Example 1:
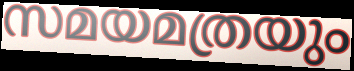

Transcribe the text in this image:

സമയമത്രയും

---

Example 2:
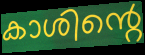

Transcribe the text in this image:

കാശിന്റെ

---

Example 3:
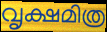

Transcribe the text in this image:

വൃക്ഷമിത്ര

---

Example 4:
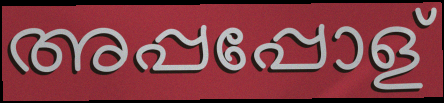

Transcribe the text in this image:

അപ്പപ്പോള്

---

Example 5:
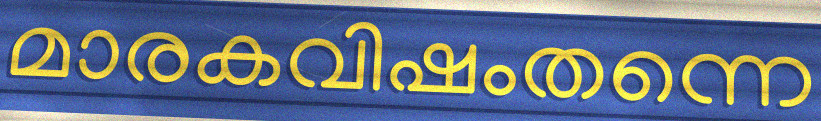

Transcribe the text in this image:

മാരകവിഷംതന്നെ